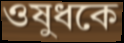
ওষুধকে